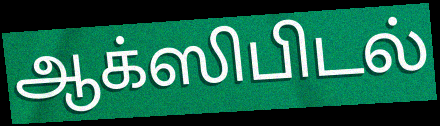
ஆக்ஸிபிடல்